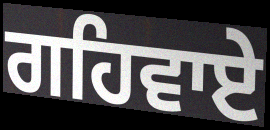
ਗਹਿਵਾਏ